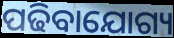
ପଢିବାଯୋଗ୍ୟ